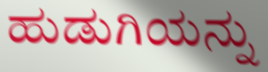
ಹುಡುಗಿಯನ್ನು